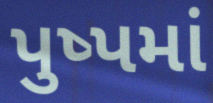
પુષ્પમાં